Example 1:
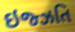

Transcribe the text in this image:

ઇજ્ઝતિ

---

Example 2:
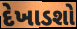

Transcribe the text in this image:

દેખાડશો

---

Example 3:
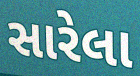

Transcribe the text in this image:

સારેલા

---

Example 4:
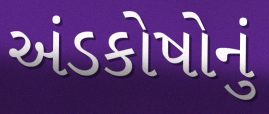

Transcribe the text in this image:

અંડકોષોનું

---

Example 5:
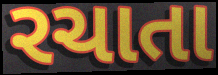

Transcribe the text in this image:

રચાતા